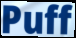
Puff